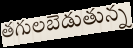
తగులబెడుతున్న